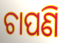
ଚାପଣି